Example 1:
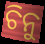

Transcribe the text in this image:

ଚିନୁ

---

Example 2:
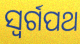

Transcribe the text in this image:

ସ୍ୱର୍ଗପଥ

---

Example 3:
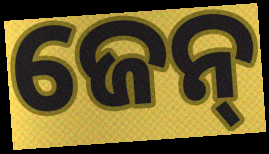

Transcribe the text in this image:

ଜେନ୍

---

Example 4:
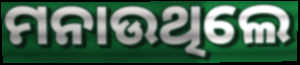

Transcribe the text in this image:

ମନାଉଥିଲେ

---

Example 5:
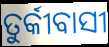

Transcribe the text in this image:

ତୁର୍କୀବାସୀ